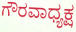
ಗೌರವಾಧ್ಯಕ್ಷ